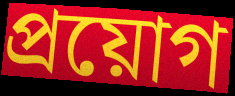
প্ৰয়োগ